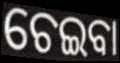
ଚେଇବା